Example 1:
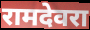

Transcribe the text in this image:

रामदेवरा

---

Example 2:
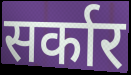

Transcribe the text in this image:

सर्कार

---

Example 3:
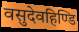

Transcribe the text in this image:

वसुदेवहिण्डि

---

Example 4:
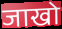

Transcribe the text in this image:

जाखो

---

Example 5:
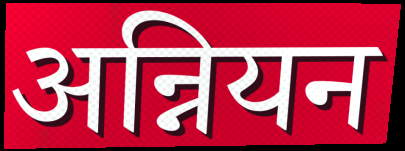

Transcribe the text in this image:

अन्नियन